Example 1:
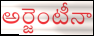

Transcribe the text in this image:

అర్జెంటీనా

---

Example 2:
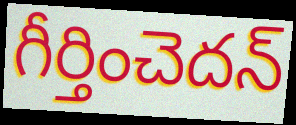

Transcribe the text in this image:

గీర్తించెదన్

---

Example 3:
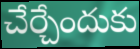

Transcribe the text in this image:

చేర్చేందుకు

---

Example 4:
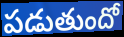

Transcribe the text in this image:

పడుతుందో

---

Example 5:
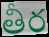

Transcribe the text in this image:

తీర